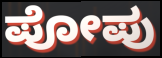
ಪೋಪು